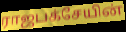
ராஜபக்சேயின்